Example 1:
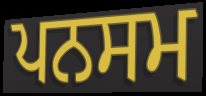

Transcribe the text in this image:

ਪਨਸਮ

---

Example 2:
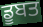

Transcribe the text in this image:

ਡੂਬਤ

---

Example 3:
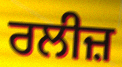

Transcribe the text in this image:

ਰਲੀਜ਼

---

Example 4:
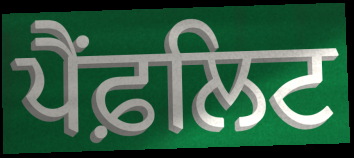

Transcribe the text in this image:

ਪੈਂਫ਼ਲਿਟ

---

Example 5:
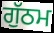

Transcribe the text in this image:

ਗੁੱਠਮ